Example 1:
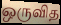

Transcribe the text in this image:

ஒருவித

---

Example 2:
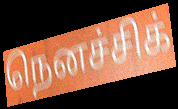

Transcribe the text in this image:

நெனச்சிக்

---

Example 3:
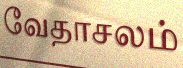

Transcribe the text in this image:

வேதாசலம்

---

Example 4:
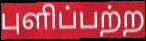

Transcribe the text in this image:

புளிப்பற்ற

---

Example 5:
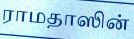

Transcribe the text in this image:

ராமதாஸின்